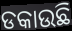
ଡକାଉଛି